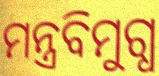
ମନ୍ତ୍ରବିମୁଗ୍ଧ